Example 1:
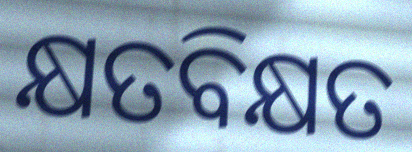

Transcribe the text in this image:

କ୍ଷତବିକ୍ଷତ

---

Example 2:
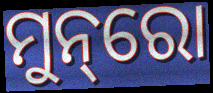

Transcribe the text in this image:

ମୁନ୍‌ରୋ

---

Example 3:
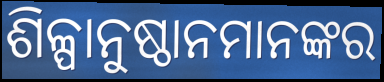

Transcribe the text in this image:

ଶିଳ୍ପାନୁଷ୍ଠାନମାନଙ୍କର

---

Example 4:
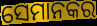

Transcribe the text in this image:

ସେମାନକର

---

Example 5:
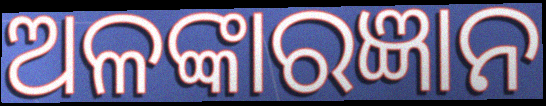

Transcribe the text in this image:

ଅଳଙ୍କାରଜ୍ଞାନ